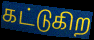
கட்டுகிற